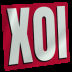
XOI